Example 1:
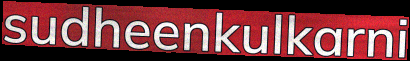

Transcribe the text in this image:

sudheenkulkarni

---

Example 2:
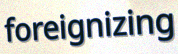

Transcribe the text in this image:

foreignizing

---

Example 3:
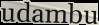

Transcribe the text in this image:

udambu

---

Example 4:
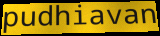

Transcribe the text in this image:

pudhiavan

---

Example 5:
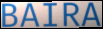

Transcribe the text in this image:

BAIRA